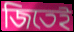
জিতেই